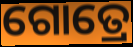
ଗୋତ୍ରେ